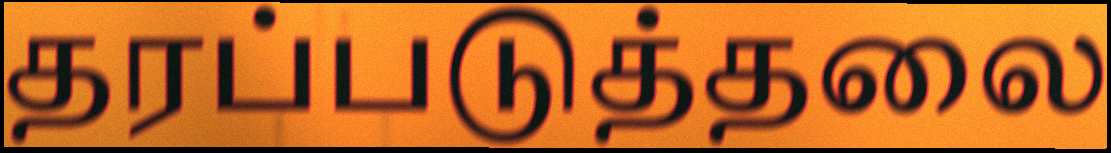
தரப்படுத்தலை